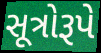
સૂત્રોરૂપે